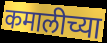
कमालीच्या